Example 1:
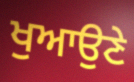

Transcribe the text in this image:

ਖੁਆਉਣੇ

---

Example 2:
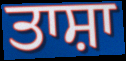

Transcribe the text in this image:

ਤਾਸ਼ਾ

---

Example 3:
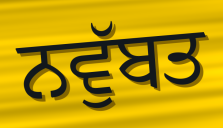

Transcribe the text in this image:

ਨਵੁੱਬਤ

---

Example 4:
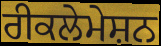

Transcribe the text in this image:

ਰੀਕਲੇਮੇਸ਼ਨ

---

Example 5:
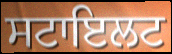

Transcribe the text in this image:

ਸਟਾਇਲਟ